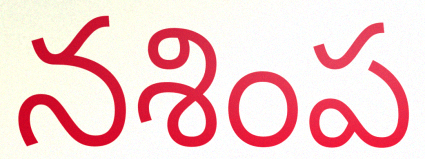
నశింప